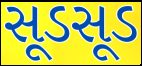
સૂડસૂડ